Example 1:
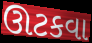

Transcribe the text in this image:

ઊટકવા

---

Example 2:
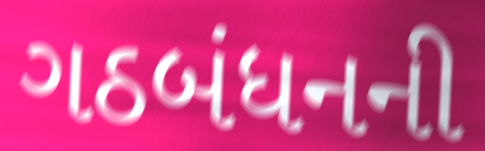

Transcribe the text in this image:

ગઠબંધનની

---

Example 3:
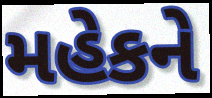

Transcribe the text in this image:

મહેકને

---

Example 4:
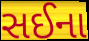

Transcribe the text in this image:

સઈના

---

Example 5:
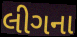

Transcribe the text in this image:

લીગના